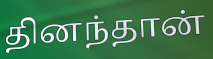
தினந்தான்